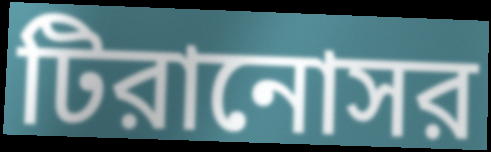
টিরানোসর